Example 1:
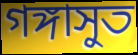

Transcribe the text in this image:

গঙ্গাসুত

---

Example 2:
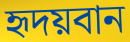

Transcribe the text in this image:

হৃদয়বান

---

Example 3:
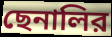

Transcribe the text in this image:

ছেনালির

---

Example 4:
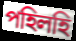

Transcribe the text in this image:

পহিলহি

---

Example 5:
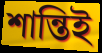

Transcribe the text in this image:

শান্তিই